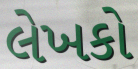
લેખકો